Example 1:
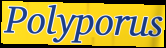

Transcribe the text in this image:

Polyporus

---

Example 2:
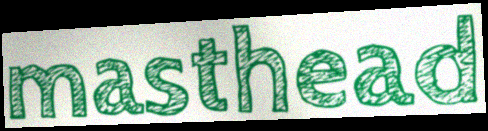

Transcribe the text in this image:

masthead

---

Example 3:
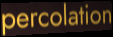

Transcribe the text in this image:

percolation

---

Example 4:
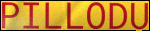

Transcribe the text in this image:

PILLODU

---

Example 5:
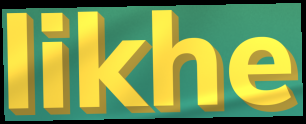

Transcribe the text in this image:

likhe